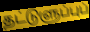
தட்டுளுப்புப்